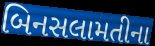
બિનસલામતીના